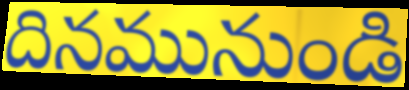
దినమునుండి